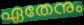
ഏതേനും